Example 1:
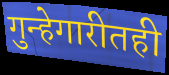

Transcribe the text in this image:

गुन्हेगारीतही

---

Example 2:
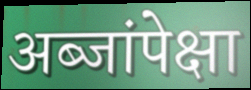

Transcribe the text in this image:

अब्जांपेक्षा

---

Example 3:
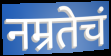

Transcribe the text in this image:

नम्रतेचं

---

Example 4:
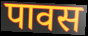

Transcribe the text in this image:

पावस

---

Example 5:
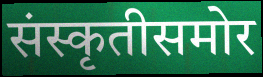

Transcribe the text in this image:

संस्कृतीसमोर